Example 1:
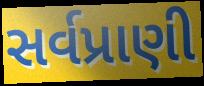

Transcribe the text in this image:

સર્વપ્રાણી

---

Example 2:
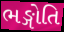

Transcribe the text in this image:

ભઙ્ગોતિ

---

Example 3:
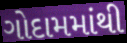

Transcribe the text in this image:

ગોદામમાંથી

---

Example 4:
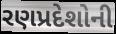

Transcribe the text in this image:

રણપ્રદેશોની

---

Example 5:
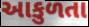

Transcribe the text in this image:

આકુળતા